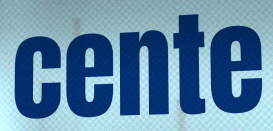
cente